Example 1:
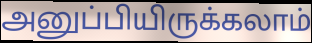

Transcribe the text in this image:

அனுப்பியிருக்கலாம்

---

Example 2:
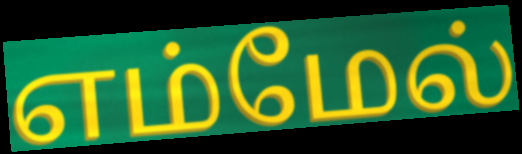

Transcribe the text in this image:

எம்மேல்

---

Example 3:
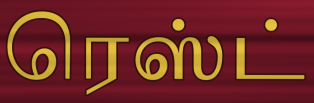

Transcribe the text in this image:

ரெஸ்ட்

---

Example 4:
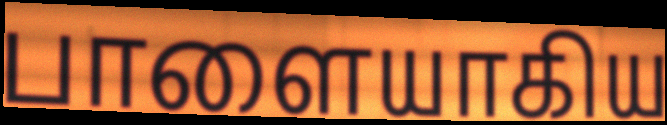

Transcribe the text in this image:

பாளையாகிய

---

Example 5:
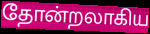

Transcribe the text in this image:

தோன்றலாகிய